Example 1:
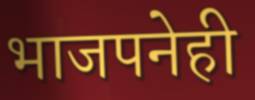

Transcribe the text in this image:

भाजपनेही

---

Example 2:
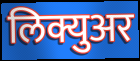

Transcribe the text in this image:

लिक्युअर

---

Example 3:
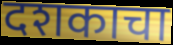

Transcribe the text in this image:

दशकाचा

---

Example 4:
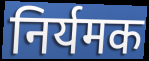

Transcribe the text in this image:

निर्यमक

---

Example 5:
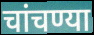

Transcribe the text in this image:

चांचण्या